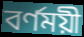
বর্ণময়ী